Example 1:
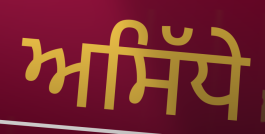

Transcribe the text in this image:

ਅਸਿੱਧੇ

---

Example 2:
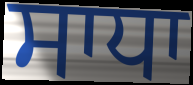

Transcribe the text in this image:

ਸਾਧਾ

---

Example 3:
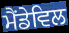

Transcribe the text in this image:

ਮੈਂਡੇਵਿਲ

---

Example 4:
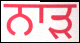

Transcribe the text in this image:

ਨਾੜ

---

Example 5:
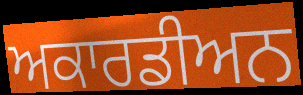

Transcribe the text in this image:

ਅਕਾਰਡੀਅਨ